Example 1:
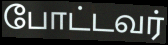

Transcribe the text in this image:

போட்டவர்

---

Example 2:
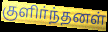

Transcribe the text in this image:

குளிர்ந்தனள்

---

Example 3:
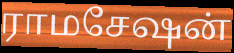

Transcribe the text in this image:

ராமசேஷன்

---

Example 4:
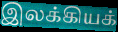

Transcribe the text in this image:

இலக்கியக்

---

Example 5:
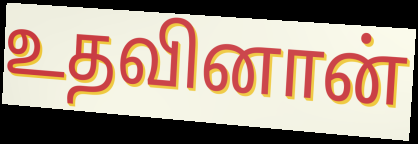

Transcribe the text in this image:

உதவினான்